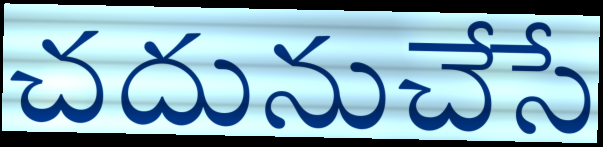
చదునుచేసే